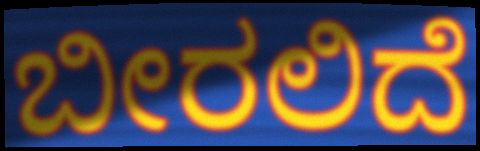
ಬೀರಲಿದೆ